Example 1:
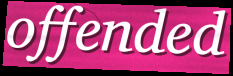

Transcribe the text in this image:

offended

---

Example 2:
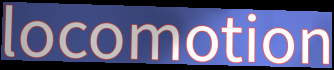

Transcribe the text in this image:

locomotion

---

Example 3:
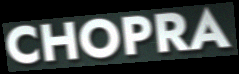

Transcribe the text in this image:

CHOPRA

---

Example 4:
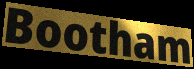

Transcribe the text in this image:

Bootham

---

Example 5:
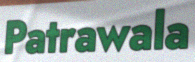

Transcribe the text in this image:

Patrawala